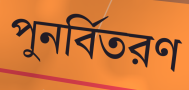
পুনর্বিতরণ